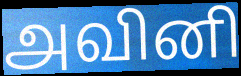
அவினி